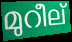
മുറീല്